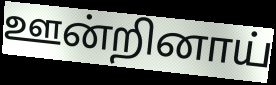
ஊன்றினாய்